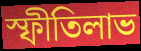
স্ফীতিলাভ